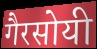
गैरसोयी